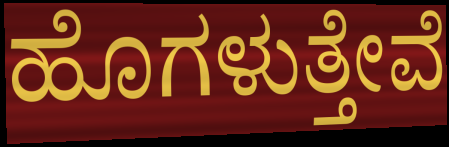
ಹೊಗಳುತ್ತೇವೆ